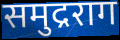
समुद्रराग